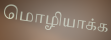
மொழியாக்க